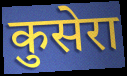
कुसेरा